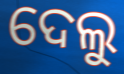
ଦେଲୁ